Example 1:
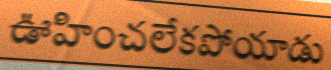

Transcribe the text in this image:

ఊహించలేకపోయాడు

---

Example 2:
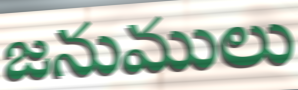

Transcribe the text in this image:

జనుములు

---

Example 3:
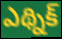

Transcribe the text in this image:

ఎథ్నిక్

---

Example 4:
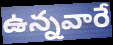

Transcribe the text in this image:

ఉన్నవారే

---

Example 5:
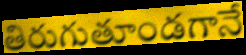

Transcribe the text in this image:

తిరుగుతూండగానే